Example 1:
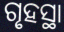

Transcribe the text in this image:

ଗୃହସ୍ଥା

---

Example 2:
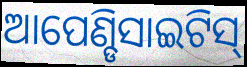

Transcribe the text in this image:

ଆପେଣ୍ଡିସାଇଟିସ୍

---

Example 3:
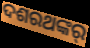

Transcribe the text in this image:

ଦଶରଥଙ୍କର୍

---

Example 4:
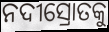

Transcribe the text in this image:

ନଦୀସ୍ରୋତକୁ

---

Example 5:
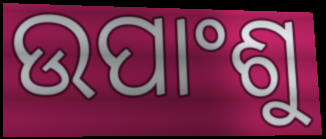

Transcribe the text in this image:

ଉପାଂଶୁ